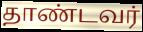
தாண்டவர்